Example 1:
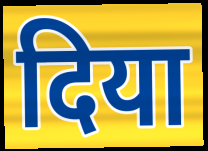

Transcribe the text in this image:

दिया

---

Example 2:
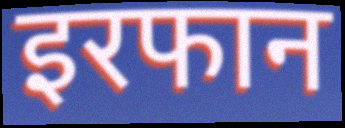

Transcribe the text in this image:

इरफान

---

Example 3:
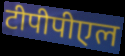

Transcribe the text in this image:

टीपीपीएल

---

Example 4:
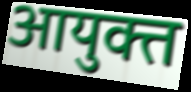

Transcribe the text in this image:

आयुक्त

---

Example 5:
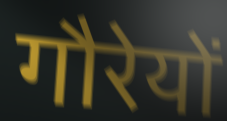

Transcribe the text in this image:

गौरेयों